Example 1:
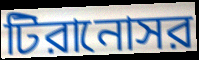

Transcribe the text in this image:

টিরানোসর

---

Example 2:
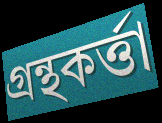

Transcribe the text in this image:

গ্রন্থকর্ত্তা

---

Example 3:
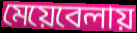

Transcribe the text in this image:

মেয়েবেলায়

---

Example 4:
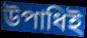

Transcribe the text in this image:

উপাধিই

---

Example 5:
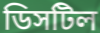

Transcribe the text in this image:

ডিসটিল